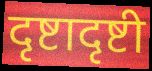
दृष्टादृष्टी